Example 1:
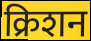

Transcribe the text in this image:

क्रिशन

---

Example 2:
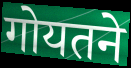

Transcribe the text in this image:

गोयतने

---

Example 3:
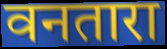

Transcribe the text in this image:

वनतारा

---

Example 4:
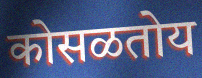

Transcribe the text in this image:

कोसळतोय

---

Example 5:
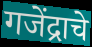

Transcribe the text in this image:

गजेंद्राचे